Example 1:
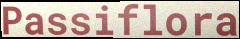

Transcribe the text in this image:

Passiflora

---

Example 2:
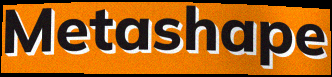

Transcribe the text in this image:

Metashape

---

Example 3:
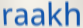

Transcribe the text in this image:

raakh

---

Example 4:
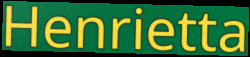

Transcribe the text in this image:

Henrietta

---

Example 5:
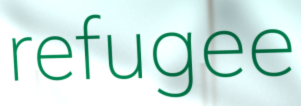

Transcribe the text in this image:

refugee